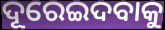
ଦୂରେଇଦବାକୁ